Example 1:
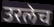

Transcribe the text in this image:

उरलेच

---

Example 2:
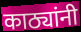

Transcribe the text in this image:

काठ्यांनी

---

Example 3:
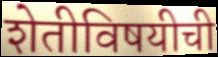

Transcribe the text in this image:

शेतीविषयीची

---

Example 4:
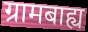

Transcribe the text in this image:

ग्रामबाह्य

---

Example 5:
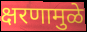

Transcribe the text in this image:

क्षरणामुळे